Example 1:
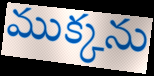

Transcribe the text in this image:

ముక్కను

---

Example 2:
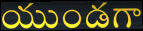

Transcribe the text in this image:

యుండగా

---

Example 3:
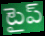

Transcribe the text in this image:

టైప్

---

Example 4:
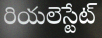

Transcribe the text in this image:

రియలెస్టేట్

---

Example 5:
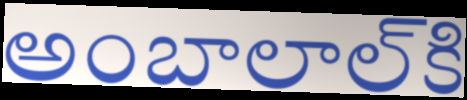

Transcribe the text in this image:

అంబాలాల్‌కి